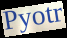
Pyotr